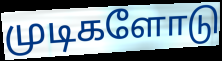
முடிகளோடு